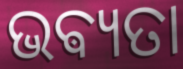
ଭଵ୍ୟତା